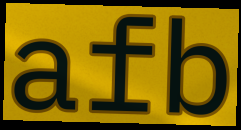
afb